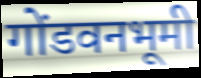
गोंडवनभूमी